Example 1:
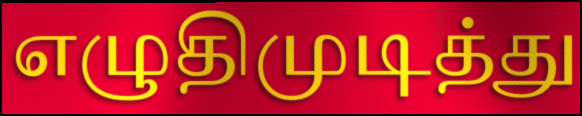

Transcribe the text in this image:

எழுதிமுடித்து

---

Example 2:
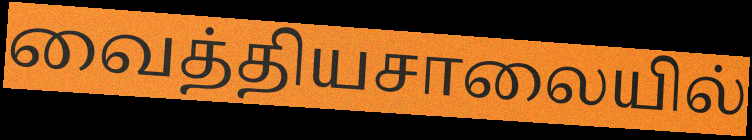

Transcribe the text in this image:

வைத்தியசாலையில்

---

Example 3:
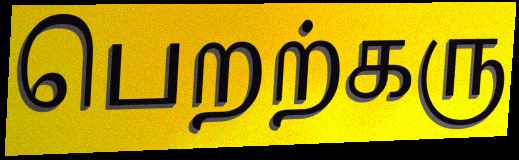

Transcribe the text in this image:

பெறற்கரு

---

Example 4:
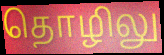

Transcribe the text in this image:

தொழிலு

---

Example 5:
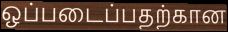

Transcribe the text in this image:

ஒப்படைப்பதற்கான